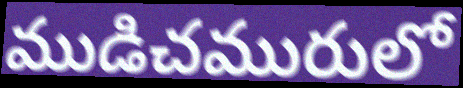
ముడిచమురులో